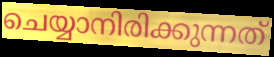
ചെയ്യാനിരിക്കുന്നത്